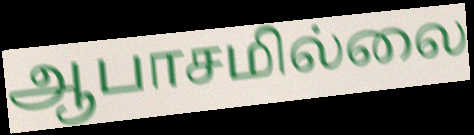
ஆபாசமில்லை